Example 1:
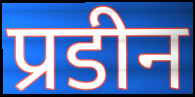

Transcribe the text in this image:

प्रडीन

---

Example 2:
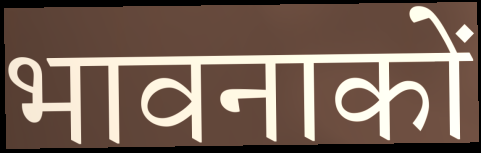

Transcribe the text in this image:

भावनाकों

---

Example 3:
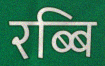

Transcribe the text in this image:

रब्बि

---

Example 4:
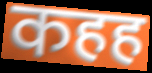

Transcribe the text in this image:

कहह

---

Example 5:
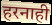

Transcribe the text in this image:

हरनाही